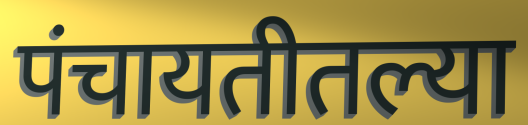
पंचायतीतल्या